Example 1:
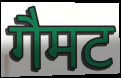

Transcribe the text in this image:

गैमट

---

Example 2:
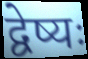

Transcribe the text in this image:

द्वेष्यः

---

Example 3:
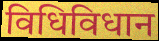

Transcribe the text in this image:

विधिविधान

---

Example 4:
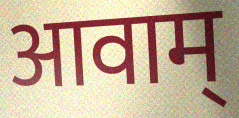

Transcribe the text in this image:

आवाम्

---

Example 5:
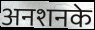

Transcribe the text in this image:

अनशनके